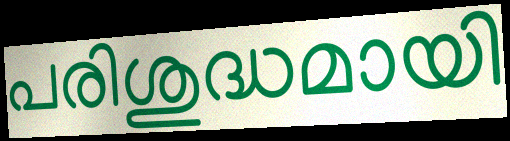
പരിശുദ്ധമായി